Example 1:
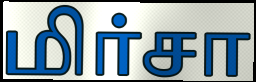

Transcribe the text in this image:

மிர்சா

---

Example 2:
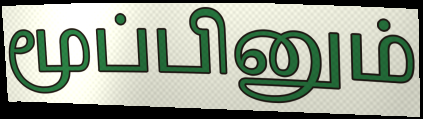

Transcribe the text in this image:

மூப்பினும்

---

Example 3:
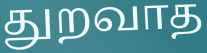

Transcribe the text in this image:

துறவாத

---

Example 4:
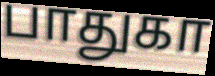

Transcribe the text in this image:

பாதுகா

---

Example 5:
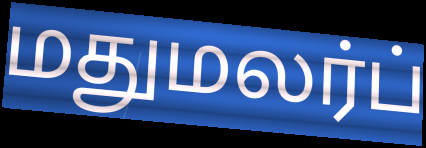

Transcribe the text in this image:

மதுமலர்ப்